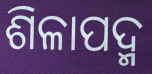
ଶିଳାପଦ୍ମ